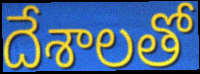
దేశాలతో